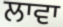
ਲਾਵਾ